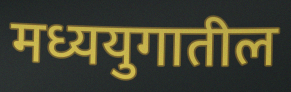
मध्ययुगातील